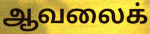
ஆவலைக்